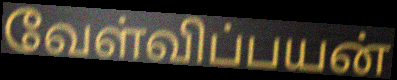
வேள்விப்பயன்